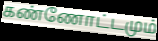
கண்ணோட்டமும்